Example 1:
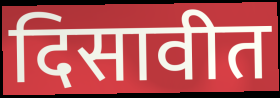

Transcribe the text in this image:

दिसावीत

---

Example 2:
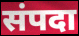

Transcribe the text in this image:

संपदा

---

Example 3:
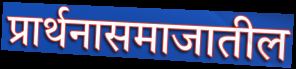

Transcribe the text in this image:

प्रार्थनासमाजातील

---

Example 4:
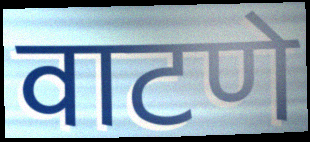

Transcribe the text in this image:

वाटणे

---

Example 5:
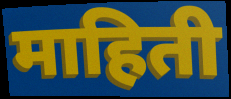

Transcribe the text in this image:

माहिती